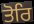
ਤੋਰਿ